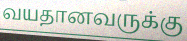
வயதானவருக்கு